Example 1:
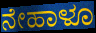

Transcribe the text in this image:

ನೇಹಾಳೂ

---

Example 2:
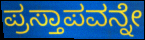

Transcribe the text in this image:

ಪ್ರಸ್ತಾಪವನ್ನೇ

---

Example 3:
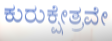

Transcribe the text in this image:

ಕುರುಕ್ಷೇತ್ರವೇ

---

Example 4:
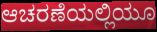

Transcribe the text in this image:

ಆಚರಣೆಯಲ್ಲಿಯೂ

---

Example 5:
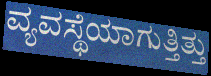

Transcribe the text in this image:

ವ್ಯವಸ್ಥೆಯಾಗುತ್ತಿತ್ತು